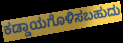
ಕಡ್ಡಾಯಗೊಳಿಸಬಹುದು